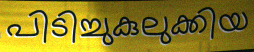
പിടിച്ചുകുലുക്കിയ